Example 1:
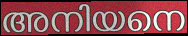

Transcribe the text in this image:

അനിയനെ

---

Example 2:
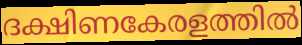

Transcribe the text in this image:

ദക്ഷിണകേരളത്തിൽ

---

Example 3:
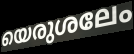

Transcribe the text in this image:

യെരുശലേം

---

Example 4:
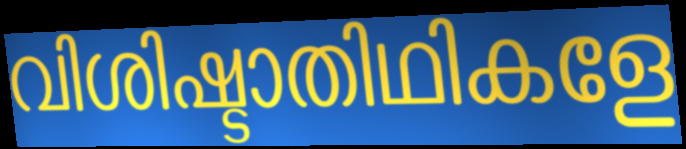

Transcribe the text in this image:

വിശിഷ്ടാതിഥികളേ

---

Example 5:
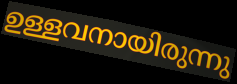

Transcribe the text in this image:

ഉള്ളവനായിരുന്നു